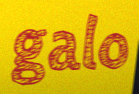
galo